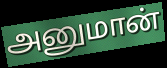
அனுமான்